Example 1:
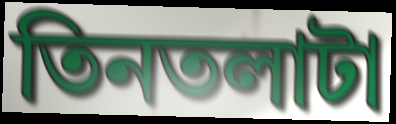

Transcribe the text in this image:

তিনতলাটা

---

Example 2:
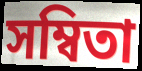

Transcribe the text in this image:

সম্বিতা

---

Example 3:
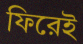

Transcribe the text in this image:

ফিরেই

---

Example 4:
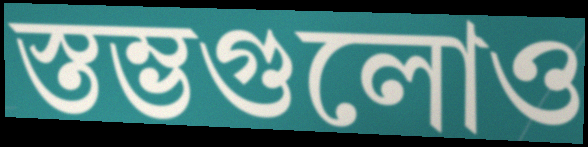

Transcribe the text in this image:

স্তম্ভগুলোও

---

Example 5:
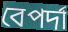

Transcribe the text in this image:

বেপর্দা